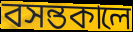
বসন্তকালে